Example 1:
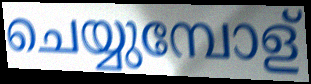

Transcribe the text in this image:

ചെയ്യുമ്പോള്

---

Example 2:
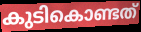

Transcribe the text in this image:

കുടികൊണ്ടത്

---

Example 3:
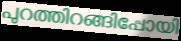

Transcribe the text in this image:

പുറത്തിറങ്ങിപ്പോയി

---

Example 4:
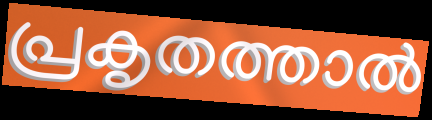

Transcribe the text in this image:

പ്രകൃതത്താൽ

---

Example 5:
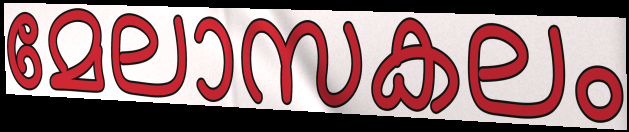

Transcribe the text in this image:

മേലാസകലം